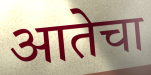
आतेचा